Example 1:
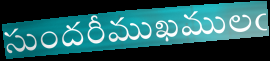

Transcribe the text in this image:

సుందరీముఖములఁ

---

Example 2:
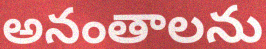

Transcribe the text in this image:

అనంతాలను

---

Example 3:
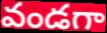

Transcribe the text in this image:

వండగా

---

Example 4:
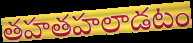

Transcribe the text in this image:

తహతహలాడటం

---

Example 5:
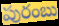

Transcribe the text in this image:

పురంబు